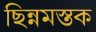
ছিন্নমস্তক